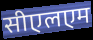
सीएलएम